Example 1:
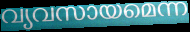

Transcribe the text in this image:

വ്യവസായമെന്ന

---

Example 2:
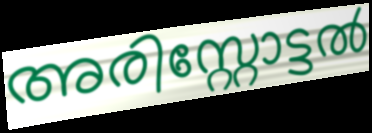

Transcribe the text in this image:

അരിസ്റ്റോട്ടൽ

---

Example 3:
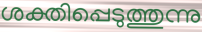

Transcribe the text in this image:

ശക്തിപ്പെടുത്തുന്നു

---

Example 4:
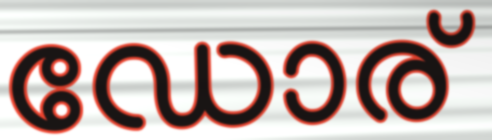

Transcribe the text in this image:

ഡോര്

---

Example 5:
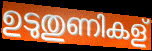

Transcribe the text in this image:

ഉടുതുണികള്